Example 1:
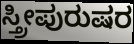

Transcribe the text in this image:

ಸ್ತ್ರೀಪುರುಷರ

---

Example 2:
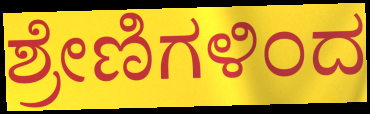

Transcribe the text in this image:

ಶ್ರೇಣಿಗಳಿಂದ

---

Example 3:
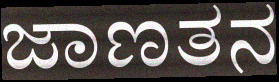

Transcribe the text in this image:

ಜಾಣತನ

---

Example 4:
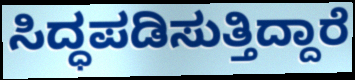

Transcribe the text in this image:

ಸಿದ್ಧಪಡಿಸುತ್ತಿದ್ದಾರೆ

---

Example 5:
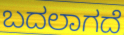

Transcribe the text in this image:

ಬದಲಾಗದೆ